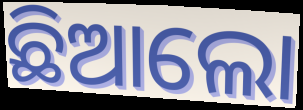
ଛିଆଲୋ